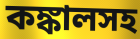
কঙ্কালসহ